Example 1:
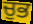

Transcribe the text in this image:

ਚੁਭ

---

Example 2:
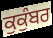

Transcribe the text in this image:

ਕੁਕੁੰਬਰ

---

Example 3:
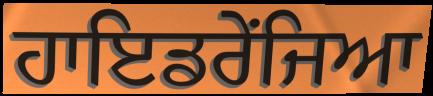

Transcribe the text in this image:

ਹਾਇਡਰੇਂਜਿਆ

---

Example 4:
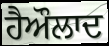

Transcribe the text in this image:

ਹੈਔਲਾਦ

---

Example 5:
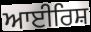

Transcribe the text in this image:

ਆਈਰਿਸ਼